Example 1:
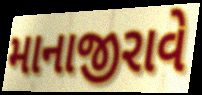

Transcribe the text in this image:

માનાજીરાવે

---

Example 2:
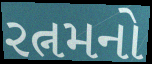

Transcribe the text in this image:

રત્નમનો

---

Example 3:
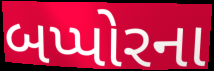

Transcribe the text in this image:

બપ્પોરના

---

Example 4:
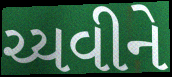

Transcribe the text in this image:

ચ્યવીને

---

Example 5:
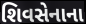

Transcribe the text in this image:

શિવસેનાના